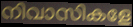
നിവാസികളേ